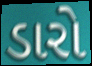
ડારો